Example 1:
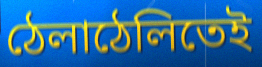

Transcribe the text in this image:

ঠেলাঠেলিতেই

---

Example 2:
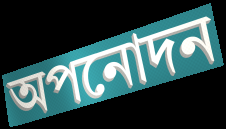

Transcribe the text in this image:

অপনোদন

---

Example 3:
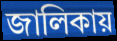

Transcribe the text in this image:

জালিকায়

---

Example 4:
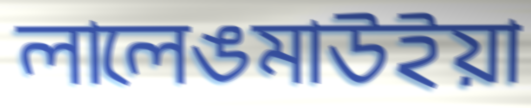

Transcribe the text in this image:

লালেঙমাউইয়া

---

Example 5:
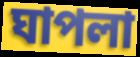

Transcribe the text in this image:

ঘাপলা